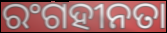
ରଂଗହୀନତା